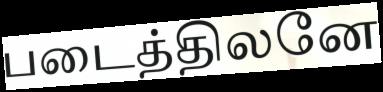
படைத்திலனே